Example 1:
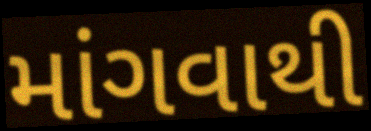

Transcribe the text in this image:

માંગવાથી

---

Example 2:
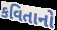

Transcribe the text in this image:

કવિતાનો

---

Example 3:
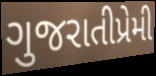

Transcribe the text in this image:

ગુજરાતીપ્રેમી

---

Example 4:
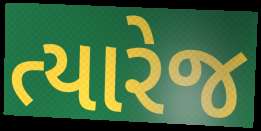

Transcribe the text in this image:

ત્યારેજ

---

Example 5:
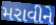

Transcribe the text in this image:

મરાવીને